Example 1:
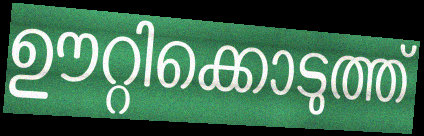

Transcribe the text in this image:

ഊറ്റിക്കൊടുത്ത്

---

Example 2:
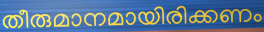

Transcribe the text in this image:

തീരുമാനമായിരിക്കണം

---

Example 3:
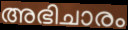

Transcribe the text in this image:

അഭിചാരം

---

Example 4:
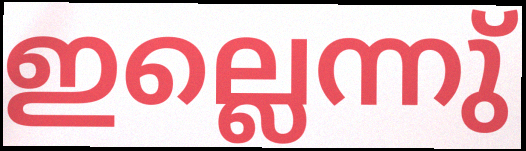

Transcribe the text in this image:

ഇല്ലെന്നു്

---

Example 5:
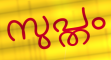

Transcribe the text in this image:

സുപ്തം